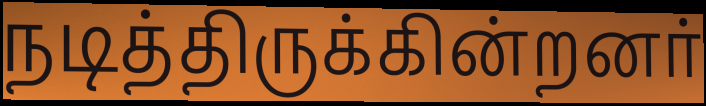
நடித்திருக்கின்றனர்